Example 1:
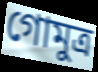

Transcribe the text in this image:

গোমুত্ৰ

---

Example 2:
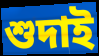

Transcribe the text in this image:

শুদাই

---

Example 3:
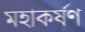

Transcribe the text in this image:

মহাকৰ্ষণ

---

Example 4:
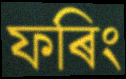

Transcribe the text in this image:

ফৰিং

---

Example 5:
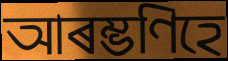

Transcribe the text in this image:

আৰম্ভণিহে